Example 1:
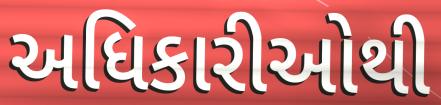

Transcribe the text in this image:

અધિકારીઓથી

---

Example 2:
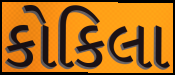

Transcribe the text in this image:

કોકિલા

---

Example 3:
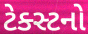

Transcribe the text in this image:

ટેક્સ્ટનો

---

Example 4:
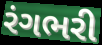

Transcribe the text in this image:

રંગભરી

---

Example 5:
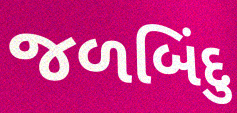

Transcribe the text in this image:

જળબિંદુ